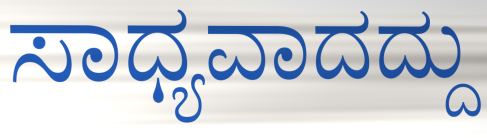
ಸಾಧ್ಯವಾದದ್ದು